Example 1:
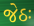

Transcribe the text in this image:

જેઠઃ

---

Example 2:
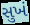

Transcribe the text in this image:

સુખં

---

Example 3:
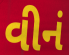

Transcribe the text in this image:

વીનં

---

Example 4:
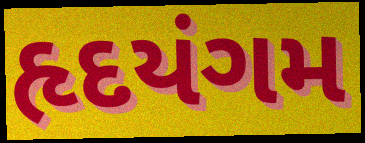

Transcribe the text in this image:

હૃદયંગમ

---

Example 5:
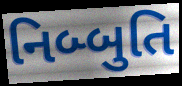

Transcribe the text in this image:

નિબ્બુતિ